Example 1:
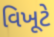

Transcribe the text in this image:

વિખૂટે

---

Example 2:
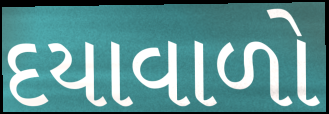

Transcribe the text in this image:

દયાવાળો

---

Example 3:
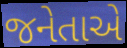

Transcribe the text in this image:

જનેતાએ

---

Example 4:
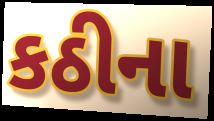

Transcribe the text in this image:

કઠીના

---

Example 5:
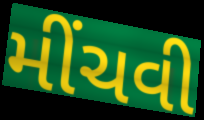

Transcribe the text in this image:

મીંચવી